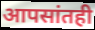
आपसांतही